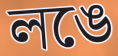
লঙে